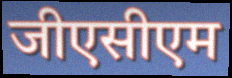
जीएसीएम